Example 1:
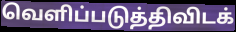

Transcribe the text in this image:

வெளிப்படுத்திவிடக்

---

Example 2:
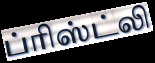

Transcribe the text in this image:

ப்ரிஸ்ட்லி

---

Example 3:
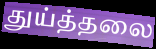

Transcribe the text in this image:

துய்த்தலை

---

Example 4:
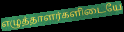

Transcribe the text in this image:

எழுத்தாளர்களிடையே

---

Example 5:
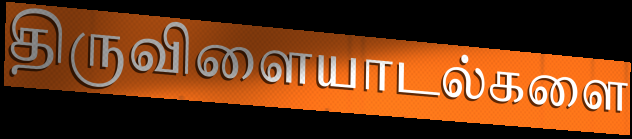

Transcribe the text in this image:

திருவிளையாடல்களை